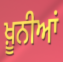
ਖ਼ੂਨੀਆਂ